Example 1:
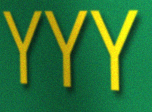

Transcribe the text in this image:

YYY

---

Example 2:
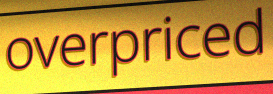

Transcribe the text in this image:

overpriced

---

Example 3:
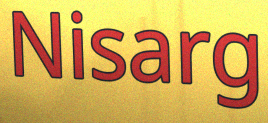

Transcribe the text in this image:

Nisarg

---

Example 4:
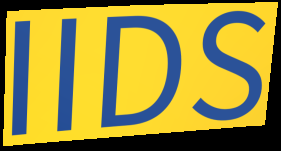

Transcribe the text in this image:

IIDS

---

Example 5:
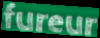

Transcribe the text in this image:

fureur